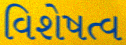
વિશેષત્વ